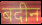
बदीन